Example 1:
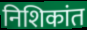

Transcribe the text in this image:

निशिकांत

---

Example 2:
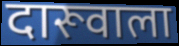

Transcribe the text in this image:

दारूवाला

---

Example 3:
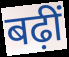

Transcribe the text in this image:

बढ़ीं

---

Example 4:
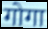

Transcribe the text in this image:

गोगा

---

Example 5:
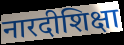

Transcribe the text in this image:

नारदीशिक्षा